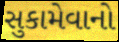
સુકામેવાનો